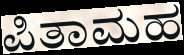
ಪಿತಾಮಹ